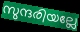
സുന്ദരിയല്ലേ